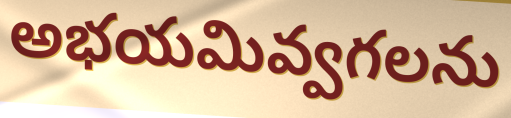
అభయమివ్వగలను